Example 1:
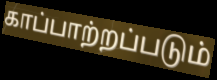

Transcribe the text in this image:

காப்பாற்றப்படும்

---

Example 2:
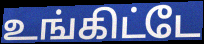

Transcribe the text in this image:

உங்கிட்டே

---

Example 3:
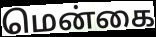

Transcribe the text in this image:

மென்கை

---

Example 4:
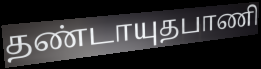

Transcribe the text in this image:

தண்டாயுதபாணி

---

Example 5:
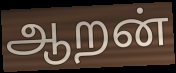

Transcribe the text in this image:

ஆறன்